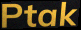
Ptak